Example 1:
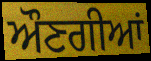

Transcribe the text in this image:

ਔਣਗੀਆਂ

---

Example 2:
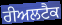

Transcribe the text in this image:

ਰੀਅਲਟੈਕ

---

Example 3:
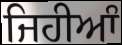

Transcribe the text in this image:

ਜਿਹੀਆੰ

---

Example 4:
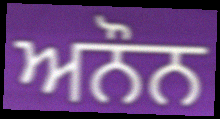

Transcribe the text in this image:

ਅਨੌਨ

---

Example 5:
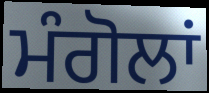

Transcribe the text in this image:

ਮੰਗੋਲਾਂ